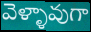
వెళ్ళావుగా